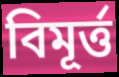
বিমূৰ্ত্ত